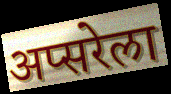
अप्सरेला